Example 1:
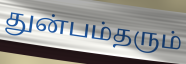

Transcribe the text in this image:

துன்பம்தரும்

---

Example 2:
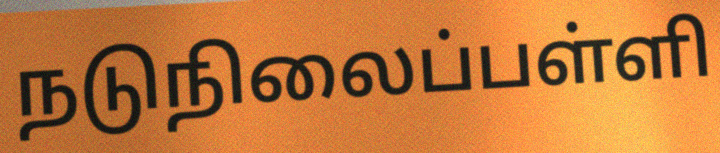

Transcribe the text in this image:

நடுநிலைப்பள்ளி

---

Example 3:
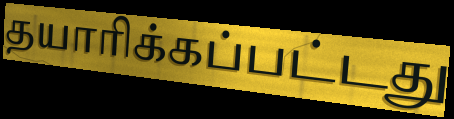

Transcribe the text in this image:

தயாரிக்கப்பட்டது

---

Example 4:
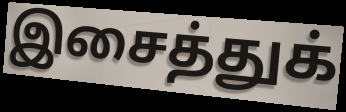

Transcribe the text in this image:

இசைத்துக்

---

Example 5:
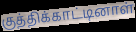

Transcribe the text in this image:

குத்திக்காட்டினாள்